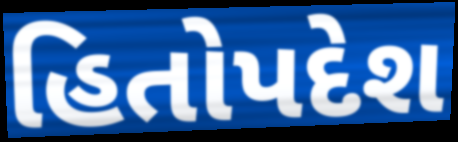
હિતોપદેશ